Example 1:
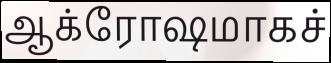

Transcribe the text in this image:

ஆக்ரோஷமாகச்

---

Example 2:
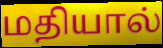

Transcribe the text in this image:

மதியால்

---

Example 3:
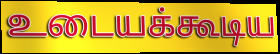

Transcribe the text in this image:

உடையக்கூடிய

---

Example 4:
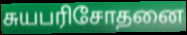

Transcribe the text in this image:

சுயபரிசோதனை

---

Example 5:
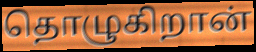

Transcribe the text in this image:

தொழுகிறான்